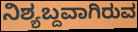
ನಿಶ್ಯಬ್ದವಾಗಿರುವ